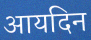
आयदिन